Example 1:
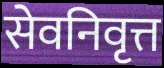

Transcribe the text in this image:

सेवनिवृत्त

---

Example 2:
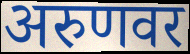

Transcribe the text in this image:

अरुणवर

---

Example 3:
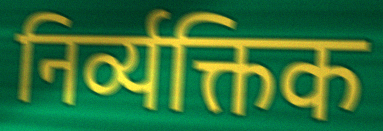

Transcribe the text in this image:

निर्व्यक्तिक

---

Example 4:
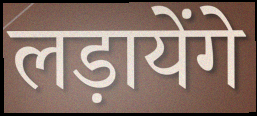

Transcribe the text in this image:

लड़ायेंगे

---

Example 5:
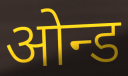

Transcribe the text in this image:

ओन्ड